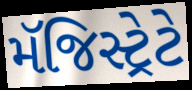
મૅજિસ્ટ્રેટે